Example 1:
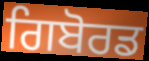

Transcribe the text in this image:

ਗਿਬੋਰਡ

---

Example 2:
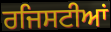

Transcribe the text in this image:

ਰਜਿਸਟੀਆਂ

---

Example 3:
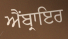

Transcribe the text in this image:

ਐਂਬ੍ਰਾਇਰ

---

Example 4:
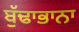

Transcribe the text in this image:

ਬੁੱਢਾਭਾਨਾ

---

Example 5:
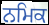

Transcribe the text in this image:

ਨਮਿਕ